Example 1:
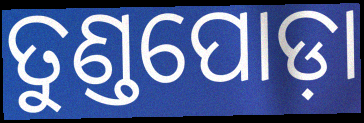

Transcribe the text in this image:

ତୁଣ୍ଡପୋଡ଼ା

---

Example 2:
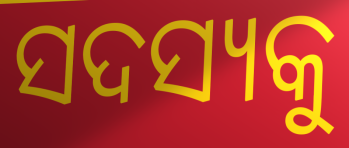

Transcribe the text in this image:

ସଦସ୍ୟକୁ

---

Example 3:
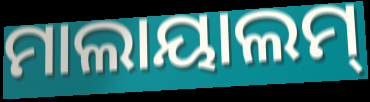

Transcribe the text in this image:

ମାଲାୟାଲମ୍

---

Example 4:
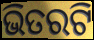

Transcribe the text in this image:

ଭିତରଟି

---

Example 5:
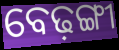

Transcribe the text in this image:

ବେଢ଼ଙ୍ଗୀ